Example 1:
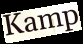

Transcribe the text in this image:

Kamp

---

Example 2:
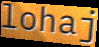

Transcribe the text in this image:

lohaj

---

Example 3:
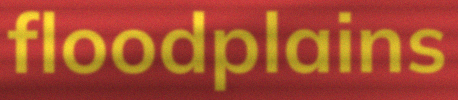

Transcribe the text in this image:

floodplains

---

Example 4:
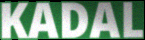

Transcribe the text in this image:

KADAL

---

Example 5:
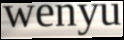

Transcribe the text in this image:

wenyu